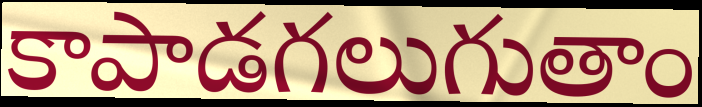
కాపాడగలుగుతాం